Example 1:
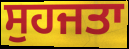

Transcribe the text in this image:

ਸੁਹਜਤਾ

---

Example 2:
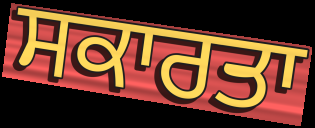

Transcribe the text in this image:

ਸਕਾਰਤਾ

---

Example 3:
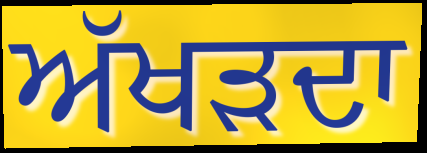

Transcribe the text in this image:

ਅੱਖੜਦਾ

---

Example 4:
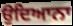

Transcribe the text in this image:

ਉਦਿਆਨਾ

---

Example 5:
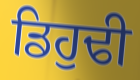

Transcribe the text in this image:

ਡਿਹੁਢੀ